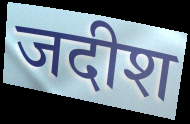
जदीश